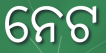
ନେଟ